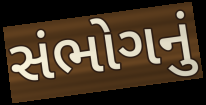
સંભોગનું